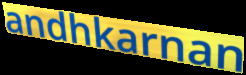
andhkarnan